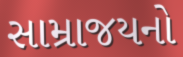
સામ્રાજયનો